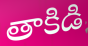
తాకిడి